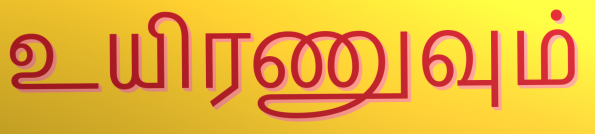
உயிரணுவும்